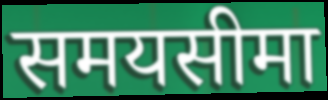
समयसीमा